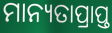
ମାନ୍ୟତାପ୍ରାପ୍ତ